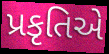
પ્રકૃતિએ